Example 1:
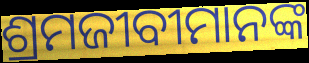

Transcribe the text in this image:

ଶ୍ରମଜୀବୀମାନଙ୍କ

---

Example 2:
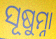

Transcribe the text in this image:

ସୂଷୁମ୍ନା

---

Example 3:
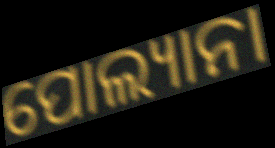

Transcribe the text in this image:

ପୋଲ୍ୟାନା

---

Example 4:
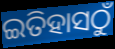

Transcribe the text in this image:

ଇତିହାସଠୁଁ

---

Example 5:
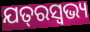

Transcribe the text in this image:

ଯତ୍‌ରସ୍ଵଭ୍ୟ